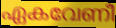
ഏകവേണീ